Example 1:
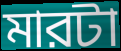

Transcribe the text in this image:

মারটা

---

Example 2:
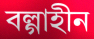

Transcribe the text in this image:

বল্গাহীন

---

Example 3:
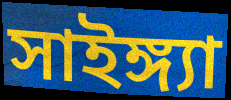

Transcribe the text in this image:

সাইঙ্গ্যা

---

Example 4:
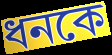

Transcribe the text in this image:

ধনকে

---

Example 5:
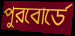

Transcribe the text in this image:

পুরবোর্ডে